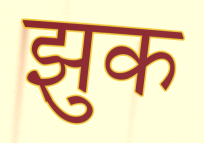
झुक